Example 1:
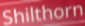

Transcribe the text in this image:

Shilthorn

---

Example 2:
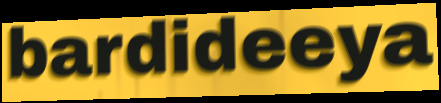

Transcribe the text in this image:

bardideeya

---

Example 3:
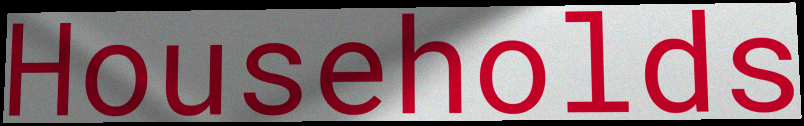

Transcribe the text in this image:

Households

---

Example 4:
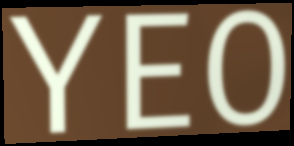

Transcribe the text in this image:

YEO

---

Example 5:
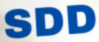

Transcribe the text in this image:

SDD